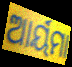
ଆର୍ୟମା